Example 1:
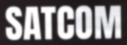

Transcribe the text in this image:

SATCOM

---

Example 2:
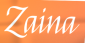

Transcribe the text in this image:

Zaina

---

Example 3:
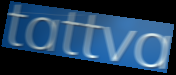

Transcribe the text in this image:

tattva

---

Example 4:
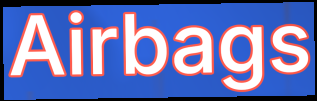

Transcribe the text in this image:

Airbags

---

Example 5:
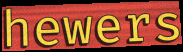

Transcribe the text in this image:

hewers